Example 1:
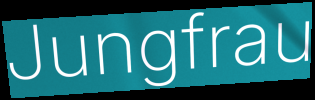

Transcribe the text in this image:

Jungfrau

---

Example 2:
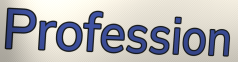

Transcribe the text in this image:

Profession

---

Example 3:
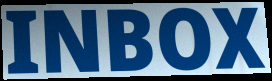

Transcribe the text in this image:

INBOX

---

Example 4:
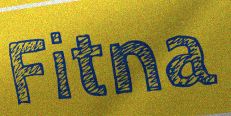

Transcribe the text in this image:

Fitna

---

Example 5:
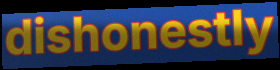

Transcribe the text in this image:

dishonestly